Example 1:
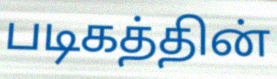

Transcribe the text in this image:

படிகத்தின்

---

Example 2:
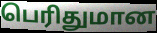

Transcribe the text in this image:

பெரிதுமான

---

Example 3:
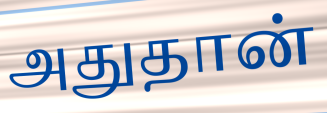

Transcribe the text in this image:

அதுதான்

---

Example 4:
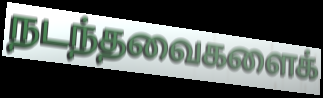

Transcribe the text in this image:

நடந்தவைகளைக்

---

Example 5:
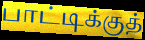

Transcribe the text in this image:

பாட்டிக்குத்